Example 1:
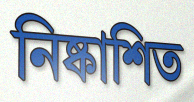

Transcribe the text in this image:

নিষ্কাশিত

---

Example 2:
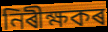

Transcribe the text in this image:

নিৰীক্ষকৰ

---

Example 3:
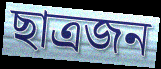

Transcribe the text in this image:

ছাত্ৰজন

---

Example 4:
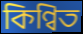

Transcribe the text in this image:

কিণ্বিত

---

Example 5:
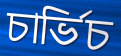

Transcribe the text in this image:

চাৰ্ভিচ